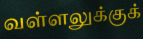
வள்ளலுக்குக்